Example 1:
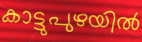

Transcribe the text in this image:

കാട്ടുപുഴയിൽ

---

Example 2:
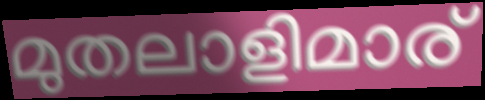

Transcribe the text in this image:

മുതലാളിമാര്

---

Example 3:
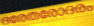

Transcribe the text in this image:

ദരേതരോദരം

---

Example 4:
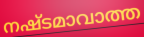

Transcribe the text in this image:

നഷ്ടമാവാത്ത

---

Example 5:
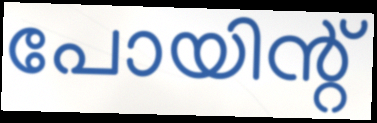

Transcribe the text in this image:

പോയിന്റ്